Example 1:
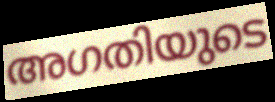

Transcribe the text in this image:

അഗതിയുടെ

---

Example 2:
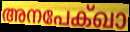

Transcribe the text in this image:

അനപേക്ഖാ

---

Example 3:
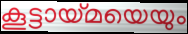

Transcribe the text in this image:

കൂട്ടായ്മയെയും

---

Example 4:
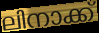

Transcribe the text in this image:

ലിനാക്ക്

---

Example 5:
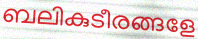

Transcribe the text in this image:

ബലികുടീരങ്ങളേ